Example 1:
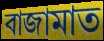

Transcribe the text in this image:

বাজামাত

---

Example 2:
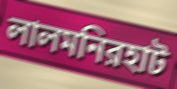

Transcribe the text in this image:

লালমনিরহাট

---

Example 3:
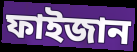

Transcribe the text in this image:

ফাইজান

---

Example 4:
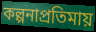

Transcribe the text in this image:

কল্পনাপ্রতিমায়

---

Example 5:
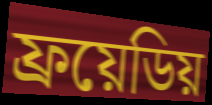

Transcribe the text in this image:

ফ্রয়েডিয়